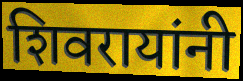
शिवरायांनी